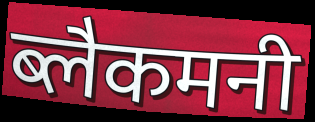
ब्लैकमनी